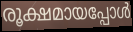
രൂക്ഷമായപ്പോൾ